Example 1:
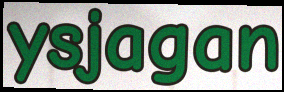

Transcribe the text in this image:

ysjagan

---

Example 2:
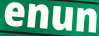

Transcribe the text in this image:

enun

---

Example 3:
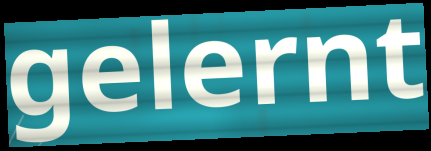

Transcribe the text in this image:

gelernt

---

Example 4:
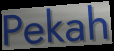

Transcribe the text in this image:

Pekah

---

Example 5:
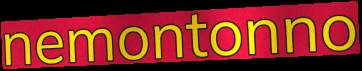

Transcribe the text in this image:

nemontonno